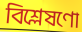
বিশ্লেষণো